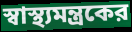
স্বাস্থ্যমন্ত্রকের